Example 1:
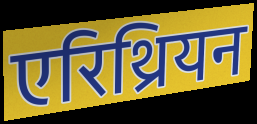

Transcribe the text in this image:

एरिथ्रियन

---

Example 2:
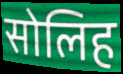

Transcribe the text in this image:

सोलिह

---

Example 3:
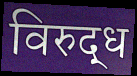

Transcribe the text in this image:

विरुद्ध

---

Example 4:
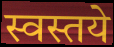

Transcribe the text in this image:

स्वस्तये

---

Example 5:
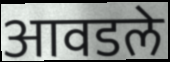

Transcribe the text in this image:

आवडले